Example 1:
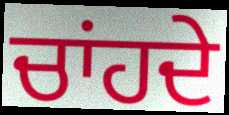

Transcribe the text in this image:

ਚਾਂਹਦੇ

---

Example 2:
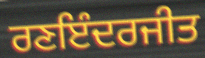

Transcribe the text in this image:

ਰਣਇੰਦਰਜੀਤ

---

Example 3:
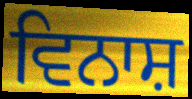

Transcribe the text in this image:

ਵਿਨਾਸ਼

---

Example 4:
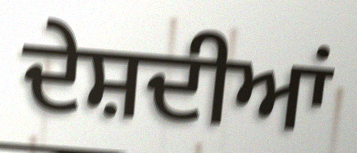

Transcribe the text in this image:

ਦੇਸ਼ਦੀਆਂ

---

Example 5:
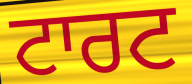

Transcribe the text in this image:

ਟਾਰਟ